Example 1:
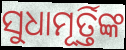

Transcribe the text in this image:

ସୁଧାମୂର୍ତ୍ତିଙ୍କ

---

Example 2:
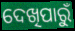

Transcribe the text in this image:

ଦେଖିପାରୁଁ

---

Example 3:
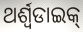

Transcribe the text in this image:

ଥର୍ଶ୍ଵଡାଇକ୍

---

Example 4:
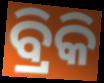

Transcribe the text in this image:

ବ୍ରିକି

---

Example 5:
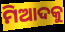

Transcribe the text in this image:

ମିଆଦକୁ